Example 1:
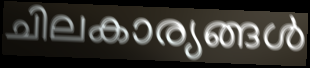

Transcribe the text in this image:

ചിലകാര്യങ്ങൾ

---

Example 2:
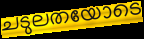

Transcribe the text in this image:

ചടുലതയോടെ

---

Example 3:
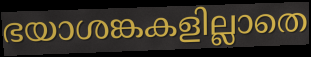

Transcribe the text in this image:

ഭയാശങ്കകളില്ലാതെ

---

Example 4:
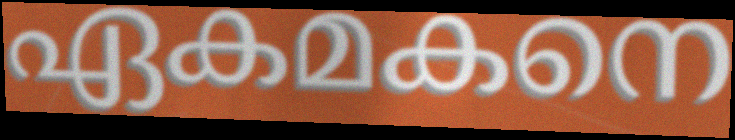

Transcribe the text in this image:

ഏകമകനെ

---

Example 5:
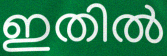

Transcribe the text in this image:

ഇതിൽ